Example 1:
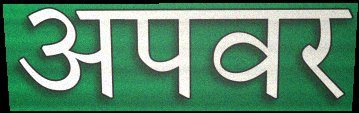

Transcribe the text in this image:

अपवर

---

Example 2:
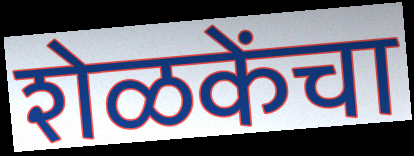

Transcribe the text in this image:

शेळकेंचा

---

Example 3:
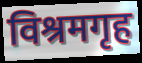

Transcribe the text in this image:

विश्रमगृह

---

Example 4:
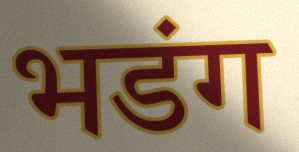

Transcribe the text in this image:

भडंग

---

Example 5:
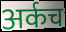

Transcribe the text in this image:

अर्कच